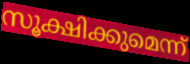
സൂക്ഷിക്കുമെന്ന്